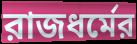
রাজধর্মের